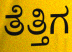
ತೆತ್ತಿಗ